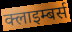
क्लाइम्बर्स